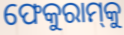
ଫେକୁରାମ୍‌କୁ